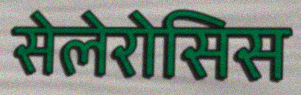
सेलेरोसिस